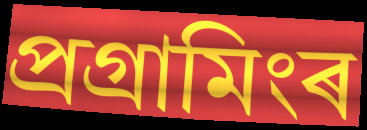
প্ৰগ্ৰামিংৰ